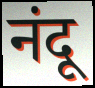
नंदू